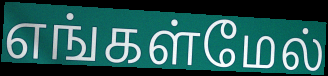
எங்கள்மேல்